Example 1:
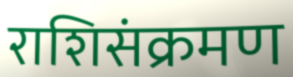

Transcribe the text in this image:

राशिसंक्रमण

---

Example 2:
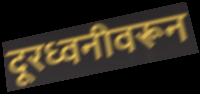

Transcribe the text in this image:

दूरध्वनीवरून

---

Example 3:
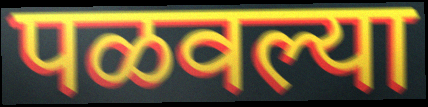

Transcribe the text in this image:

पळवल्या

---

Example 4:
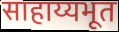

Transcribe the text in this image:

साहाय्यभूत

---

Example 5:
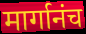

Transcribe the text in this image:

मार्गानंच